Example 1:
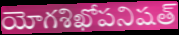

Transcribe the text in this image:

యోగశిఖోపనిషత్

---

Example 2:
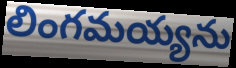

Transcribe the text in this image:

లింగమయ్యను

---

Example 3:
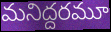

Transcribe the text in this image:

మనిద్దరమూ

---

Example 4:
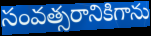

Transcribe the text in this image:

సంవత్సరానికిగాను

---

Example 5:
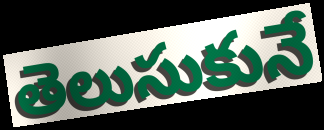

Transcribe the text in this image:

తెలుసుకునే